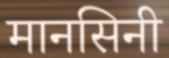
मानसिनी